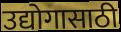
उद्योगासाठी